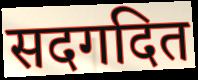
सदगदित